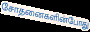
சோதனைகளின்போது